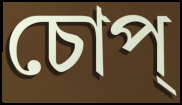
চোপ্